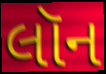
લૉન